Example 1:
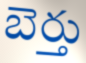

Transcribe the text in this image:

బెర్తు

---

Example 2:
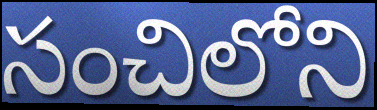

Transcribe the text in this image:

సంచిలోని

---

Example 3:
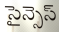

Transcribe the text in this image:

సైన్సెస్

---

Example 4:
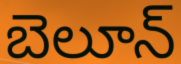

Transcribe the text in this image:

బెలూన్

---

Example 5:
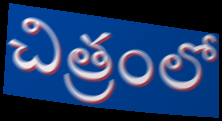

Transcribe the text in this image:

చిత్రంలో